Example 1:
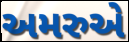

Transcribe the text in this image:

અમરુએ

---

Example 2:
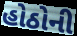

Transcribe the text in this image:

હોઠોની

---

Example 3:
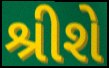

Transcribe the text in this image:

શ્રીશે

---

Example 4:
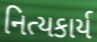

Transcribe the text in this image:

નિત્યકાર્ય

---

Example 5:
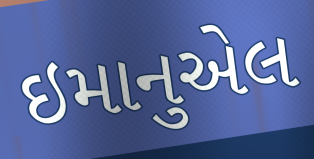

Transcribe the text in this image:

ઇમાનુએલ